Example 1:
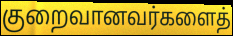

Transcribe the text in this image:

குறைவானவர்களைத்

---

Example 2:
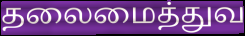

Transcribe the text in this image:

தலைமைத்துவ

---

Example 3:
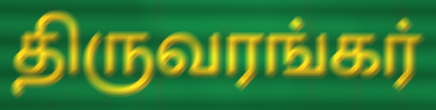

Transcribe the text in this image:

திருவரங்கர்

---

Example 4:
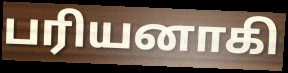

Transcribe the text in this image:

பரியனாகி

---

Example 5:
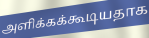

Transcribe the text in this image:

அளிக்கக்கூடியதாக